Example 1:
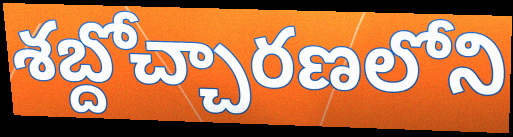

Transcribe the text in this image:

శబ్దోచ్చారణలోని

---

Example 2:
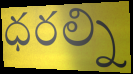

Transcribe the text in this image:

ధరల్ని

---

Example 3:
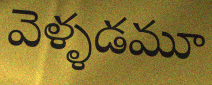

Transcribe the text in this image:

వెళ్ళడమూ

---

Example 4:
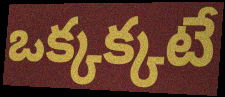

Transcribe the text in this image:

ఒక్కక్కటే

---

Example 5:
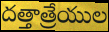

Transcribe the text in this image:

దత్తాత్రేయుల